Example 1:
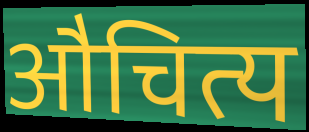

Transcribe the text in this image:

औचित्‍य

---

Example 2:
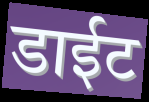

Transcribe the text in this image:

डाईट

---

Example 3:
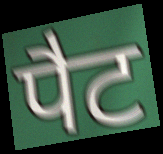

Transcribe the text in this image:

पैट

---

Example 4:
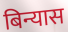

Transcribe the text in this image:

बिन्यास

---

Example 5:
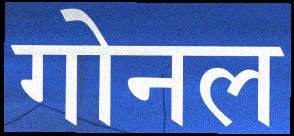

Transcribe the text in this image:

गोनल